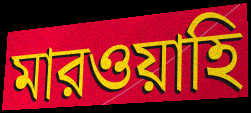
মারওয়াহি